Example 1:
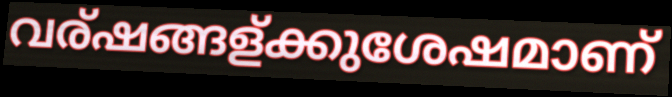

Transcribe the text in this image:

വര്ഷങ്ങള്ക്കുശേഷമാണ്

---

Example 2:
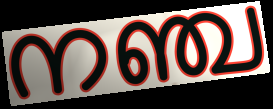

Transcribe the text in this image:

നഞ്ച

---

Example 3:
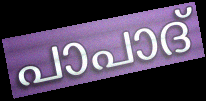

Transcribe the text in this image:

പാപാദ്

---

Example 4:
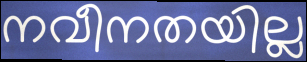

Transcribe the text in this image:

നവീനതയില്ല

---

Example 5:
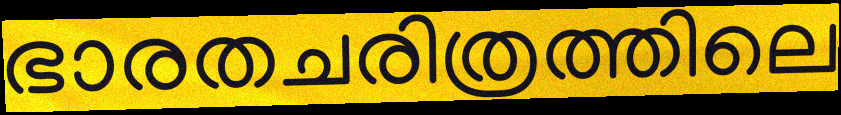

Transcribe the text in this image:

ഭാരതചരിത്രത്തിലെ